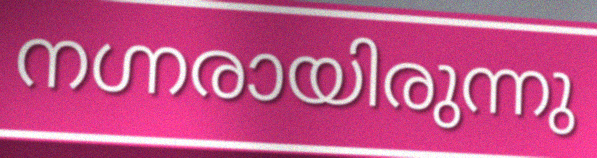
നഗ്നരായിരുന്നു